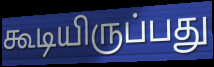
கூடியிருப்பது